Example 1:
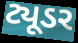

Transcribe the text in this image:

ટ્યૂડર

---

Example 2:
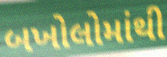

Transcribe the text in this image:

બખોલોમાંથી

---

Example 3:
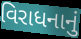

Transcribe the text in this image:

વિરાધનાનું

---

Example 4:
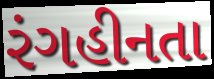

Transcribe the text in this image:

રંગહીનતા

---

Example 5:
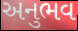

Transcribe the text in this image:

અનુભવ